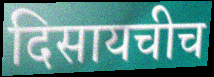
दिसायचीच